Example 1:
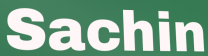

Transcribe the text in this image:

Sachin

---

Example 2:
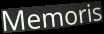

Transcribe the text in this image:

Memoris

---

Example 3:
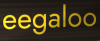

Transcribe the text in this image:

eegaloo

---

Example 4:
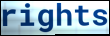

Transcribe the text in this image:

rights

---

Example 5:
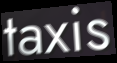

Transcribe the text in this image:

taxis